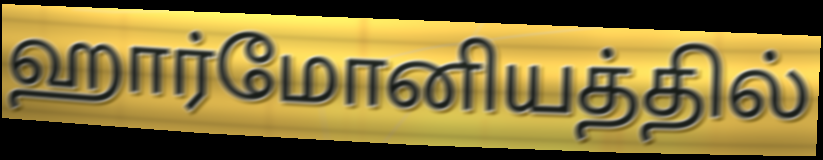
ஹார்மோனியத்தில்